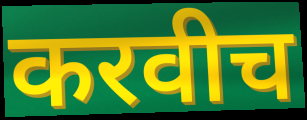
करवीच